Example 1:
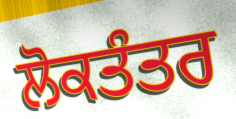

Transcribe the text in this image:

ਲੋਕਤੰਤਰ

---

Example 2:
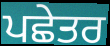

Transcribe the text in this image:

ਪਛੇਤਰ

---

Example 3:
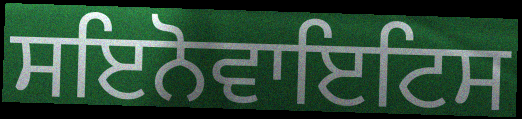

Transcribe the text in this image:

ਸਇਨੋਵਾਇਟਿਸ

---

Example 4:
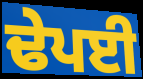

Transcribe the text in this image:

ਢੇਪਈ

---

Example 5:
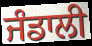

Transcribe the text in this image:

ਜੰਡਾਲੀ